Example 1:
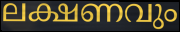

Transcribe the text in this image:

ലക്ഷണവും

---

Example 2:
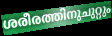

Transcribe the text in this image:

ശരീരത്തിനുചുറ്റും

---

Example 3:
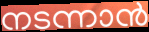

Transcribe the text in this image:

നടന്നാൻ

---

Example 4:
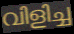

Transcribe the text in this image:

വിളിച്ച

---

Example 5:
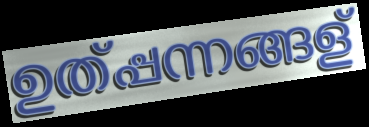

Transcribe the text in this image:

ഉത്പ്പന്നങ്ങള്